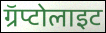
ग्रॅप्टोलाइट